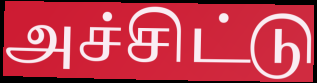
அச்சிட்டு